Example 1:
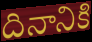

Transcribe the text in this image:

దినానికి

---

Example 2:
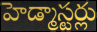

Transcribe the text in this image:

హెడ్మాస్టర్లు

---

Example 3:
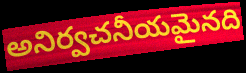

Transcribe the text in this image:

అనిర్వచనీయమైనది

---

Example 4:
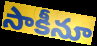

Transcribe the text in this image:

సాకీనూ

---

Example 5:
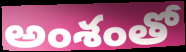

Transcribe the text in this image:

అంశంతో